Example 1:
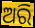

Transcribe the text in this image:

ଅରି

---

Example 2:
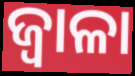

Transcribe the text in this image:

ଜ୍ୱାଳା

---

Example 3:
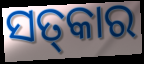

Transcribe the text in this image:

ସତ୍‌କାର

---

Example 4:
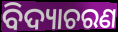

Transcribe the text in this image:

ବିଦ୍ୟାଚରଣ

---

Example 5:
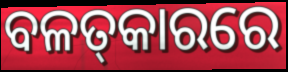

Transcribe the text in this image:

ବଳତ୍‌କାରରେ